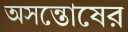
অসন্তোষের